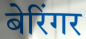
बेरिंगर